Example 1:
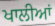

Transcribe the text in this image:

ਖਾਲੀਆਂ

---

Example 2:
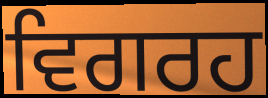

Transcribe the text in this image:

ਵਿਗਰਹ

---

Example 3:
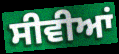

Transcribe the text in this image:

ਸੀਵੀਆਂ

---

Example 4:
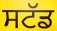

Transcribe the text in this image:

ਸਟੱਡ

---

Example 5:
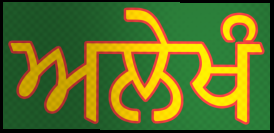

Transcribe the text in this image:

ਅਲੇਖੰ